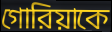
গোরিয়াকে